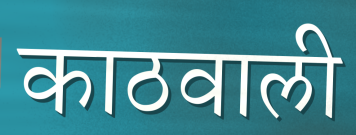
काठवाली